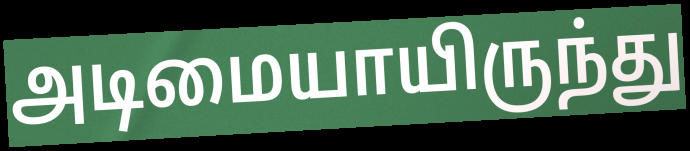
அடிமையாயிருந்து